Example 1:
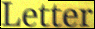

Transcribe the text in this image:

Letter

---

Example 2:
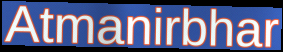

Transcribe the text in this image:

Atmanirbhar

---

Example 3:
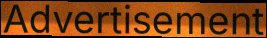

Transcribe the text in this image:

Advertisement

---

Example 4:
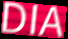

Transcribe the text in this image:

DIA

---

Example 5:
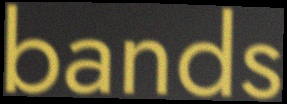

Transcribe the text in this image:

bands